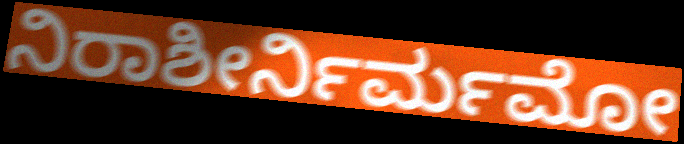
ನಿರಾಶೀರ್ನಿರ್ಮಮೋ